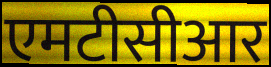
एमटीसीआर